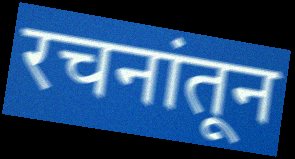
रचनांतून